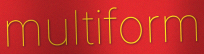
multiform